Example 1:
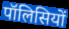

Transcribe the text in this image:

पॉलिसियों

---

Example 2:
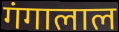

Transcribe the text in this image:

गंगालाल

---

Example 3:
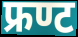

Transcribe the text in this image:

फ्रण्ट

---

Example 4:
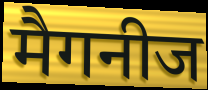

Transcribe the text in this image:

मैगनीज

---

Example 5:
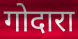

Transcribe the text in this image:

गोदारा